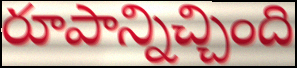
రూపాన్నిచ్చింది